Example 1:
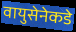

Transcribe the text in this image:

वायुसेनेकडे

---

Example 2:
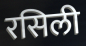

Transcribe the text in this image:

रसिली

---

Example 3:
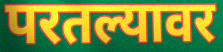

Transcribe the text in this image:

परतल्यावर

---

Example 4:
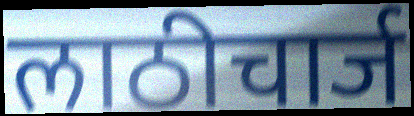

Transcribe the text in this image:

लाठीचार्ज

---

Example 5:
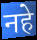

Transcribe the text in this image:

नहे